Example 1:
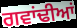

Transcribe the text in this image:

ਗਵਾਂਢੀਆਂ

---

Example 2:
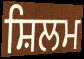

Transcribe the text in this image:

ਸ਼ਿਲਮ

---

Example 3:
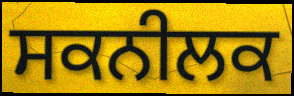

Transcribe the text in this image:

ਸਕਨੀਲਕ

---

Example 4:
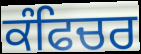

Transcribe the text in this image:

ਕੰਫਿਚਰ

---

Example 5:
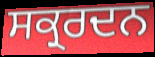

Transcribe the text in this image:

ਸਕ੍ਰਰਦਨ